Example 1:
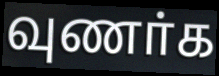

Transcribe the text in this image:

வுணர்க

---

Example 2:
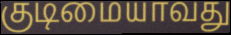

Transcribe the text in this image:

குடிமையாவது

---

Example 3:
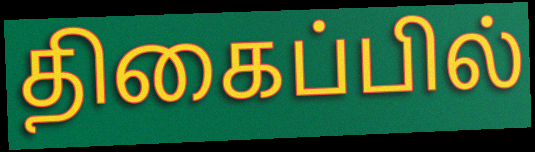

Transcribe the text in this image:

திகைப்பில்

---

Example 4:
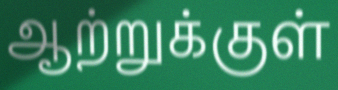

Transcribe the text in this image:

ஆற்றுக்குள்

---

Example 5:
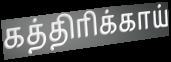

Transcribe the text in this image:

கத்திரிக்காய்